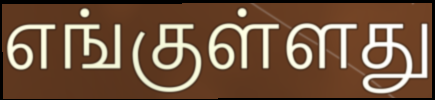
எங்குள்ளது